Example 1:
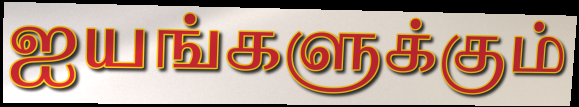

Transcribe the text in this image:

ஐயங்களுக்கும்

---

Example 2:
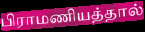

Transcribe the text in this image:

பிராமணியத்தால்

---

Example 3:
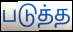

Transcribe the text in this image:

படுத்த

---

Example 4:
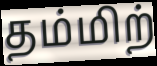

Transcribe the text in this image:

தம்மிற்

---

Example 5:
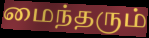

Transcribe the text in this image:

மைந்தரும்